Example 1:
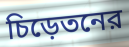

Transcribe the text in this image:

চিড়েতনের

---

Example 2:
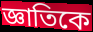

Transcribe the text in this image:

জ্ঞাতিকে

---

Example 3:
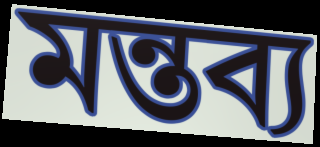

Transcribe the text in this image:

মন্তব্য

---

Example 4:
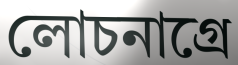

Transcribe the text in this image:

লোচনাগ্রে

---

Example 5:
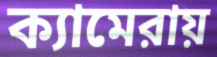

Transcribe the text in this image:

ক্যামেরায়